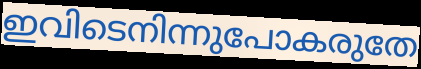
ഇവിടെനിന്നുപോകരുതേ